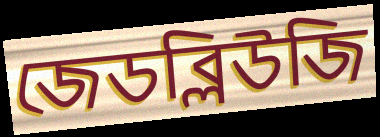
জেডব্লিউজি